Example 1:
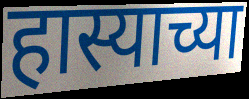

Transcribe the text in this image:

हास्याच्या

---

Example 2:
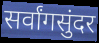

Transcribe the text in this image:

सर्वांगसुंदर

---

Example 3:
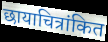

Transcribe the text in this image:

छायाचित्रांकित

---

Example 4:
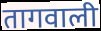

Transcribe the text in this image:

तागवाली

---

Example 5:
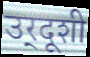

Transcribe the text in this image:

उर्दूशी